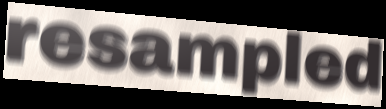
resampled